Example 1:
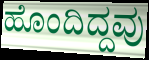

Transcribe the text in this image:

ಹೊಂದಿದ್ದವು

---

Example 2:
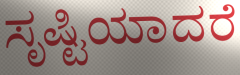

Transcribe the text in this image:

ಸೃಷ್ಟಿಯಾದರೆ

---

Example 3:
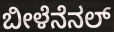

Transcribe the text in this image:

ಬೀಳೆನೆನಲ್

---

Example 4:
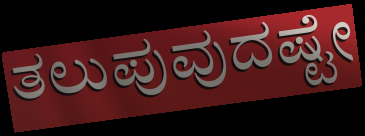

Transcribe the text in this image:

ತಲುಪುವುದಷ್ಟೇ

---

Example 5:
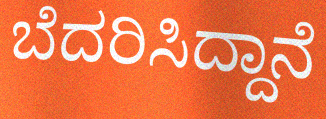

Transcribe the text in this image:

ಬೆದರಿಸಿದ್ದಾನೆ